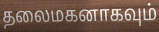
தலைமகனாகவும்